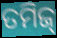
ତମିଜ୍